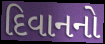
દિવાનનો